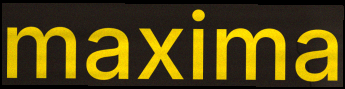
maxima